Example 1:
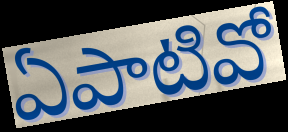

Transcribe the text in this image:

ఏపాటివో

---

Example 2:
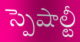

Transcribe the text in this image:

స్పెషాల్టీ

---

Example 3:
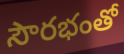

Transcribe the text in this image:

సౌరభంతో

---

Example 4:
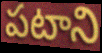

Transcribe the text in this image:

పటాని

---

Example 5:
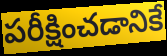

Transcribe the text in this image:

పరీక్షించడానికే